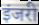
इंजरी